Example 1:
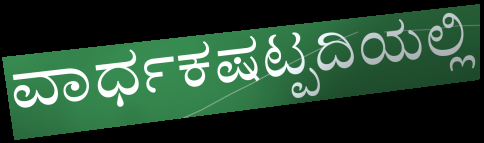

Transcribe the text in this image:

ವಾರ್ಧಕಷಟ್ಪದಿಯಲ್ಲಿ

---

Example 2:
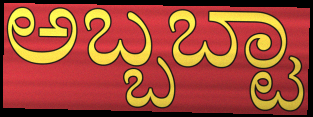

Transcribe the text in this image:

ಅಬ್ಬಬ್ಟಾ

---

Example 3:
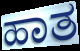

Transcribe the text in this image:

ಹಾತ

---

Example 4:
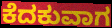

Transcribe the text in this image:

ಕೆದಕುವಾಗ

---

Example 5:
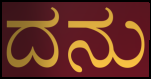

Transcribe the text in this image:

ದನು